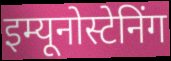
इम्यूनोस्टेनिंग